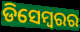
ଡିସେମ୍ୱରର